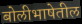
बोलीभाषेतील